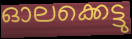
ഓലക്കെട്ടു